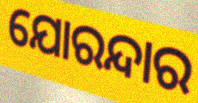
ଯୋରନ୍ଦାର